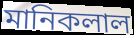
মানিকলাল